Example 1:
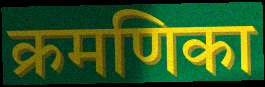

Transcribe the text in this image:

क्रमणिका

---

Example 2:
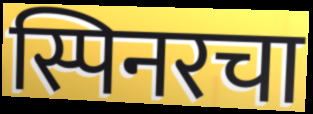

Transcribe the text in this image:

स्पिनरचा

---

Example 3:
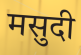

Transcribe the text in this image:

मसुदी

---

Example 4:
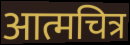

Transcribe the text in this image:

आत्मचित्र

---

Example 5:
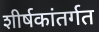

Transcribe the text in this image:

शीर्षकांतर्गत